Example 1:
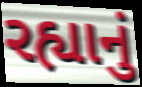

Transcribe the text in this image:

રહ્યાનું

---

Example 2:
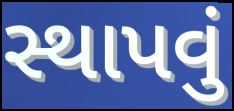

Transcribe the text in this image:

સ્થાપવું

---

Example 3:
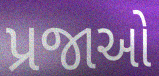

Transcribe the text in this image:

પ્રજાઓ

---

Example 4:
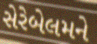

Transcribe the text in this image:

સેરેબેલમને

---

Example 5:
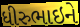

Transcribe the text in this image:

ધીરુભાઇને